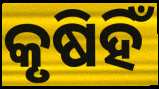
କୃଷିହିଁ